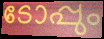
ടോപ്പും